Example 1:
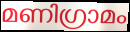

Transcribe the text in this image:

മണിഗ്രാമം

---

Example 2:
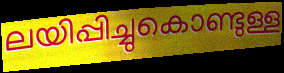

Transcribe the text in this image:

ലയിപ്പിച്ചുകൊണ്ടുള്ള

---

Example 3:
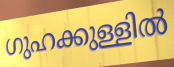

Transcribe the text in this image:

ഗുഹക്കുള്ളിൽ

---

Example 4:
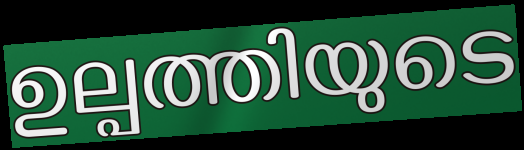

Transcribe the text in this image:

ഉല്പത്തിയുടെ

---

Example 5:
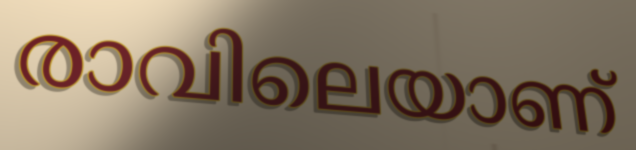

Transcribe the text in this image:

രാവിലെയാണ്